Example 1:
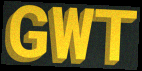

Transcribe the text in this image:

GWT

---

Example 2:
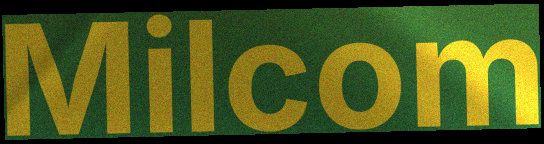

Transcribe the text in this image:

Milcom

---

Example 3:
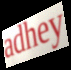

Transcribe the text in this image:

adhey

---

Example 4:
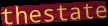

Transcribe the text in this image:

thestate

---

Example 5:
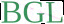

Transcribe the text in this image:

BGL